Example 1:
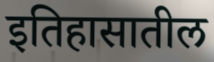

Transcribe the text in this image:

इतिहासातील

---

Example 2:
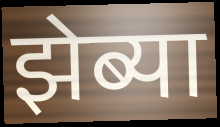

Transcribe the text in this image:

झेब्या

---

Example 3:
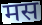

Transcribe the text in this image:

मस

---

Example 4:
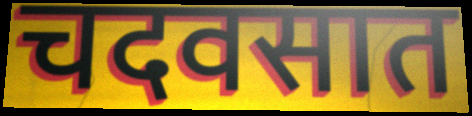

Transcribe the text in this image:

चदवसात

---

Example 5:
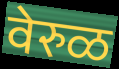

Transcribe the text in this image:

वेरुळ